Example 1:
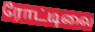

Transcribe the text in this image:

ரோட்டிலை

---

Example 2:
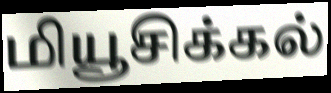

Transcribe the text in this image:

மியூசிக்கல்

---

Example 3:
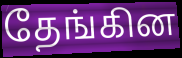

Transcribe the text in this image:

தேங்கின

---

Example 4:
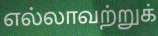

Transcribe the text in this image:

எல்லாவற்றுக்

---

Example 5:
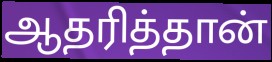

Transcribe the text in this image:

ஆதரித்தான்